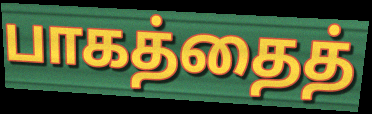
பாகத்தைத்